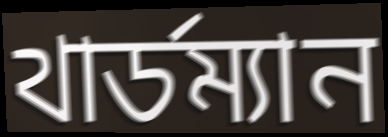
থার্ডম্যান